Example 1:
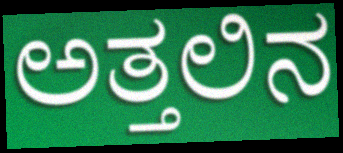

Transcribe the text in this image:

ಅತ್ತಲಿನ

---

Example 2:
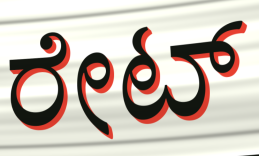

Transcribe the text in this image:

ರೇಟ್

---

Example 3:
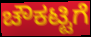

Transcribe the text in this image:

ಚೌಕಟ್ಟಿಗೆ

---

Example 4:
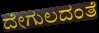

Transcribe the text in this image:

ದೇಗುಲದಂತೆ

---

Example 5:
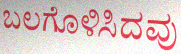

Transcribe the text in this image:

ಬಲಗೊಳಿಸಿದವು